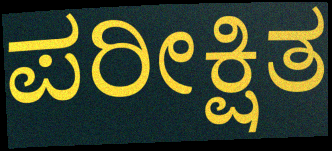
ಪರೀಕ್ಷಿತ